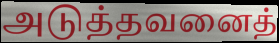
அடுத்தவனைத்